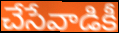
చేసేవాడికీ